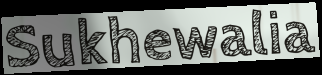
Sukhewalia